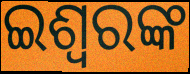
ଇଶ୍ୱରଙ୍କ